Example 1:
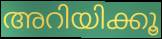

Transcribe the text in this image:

അറിയിക്കൂ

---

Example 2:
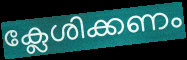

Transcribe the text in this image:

ക്ലേശിക്കണം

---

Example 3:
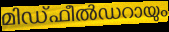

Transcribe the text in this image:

മിഡ്ഫീൽഡറായും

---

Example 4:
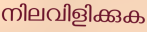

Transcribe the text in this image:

നിലവിളിക്കുക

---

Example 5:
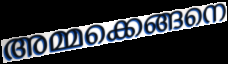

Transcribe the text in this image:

അമ്മക്കെങ്ങനെ